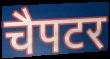
चैपटर